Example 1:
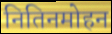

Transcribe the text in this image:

नितिनमोहन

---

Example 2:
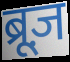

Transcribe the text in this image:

ब्रूज़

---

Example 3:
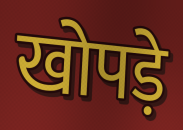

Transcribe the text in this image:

खोपड़े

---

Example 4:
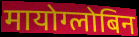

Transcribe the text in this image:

मायोग्लोबिन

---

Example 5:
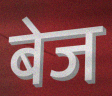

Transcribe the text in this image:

बेज